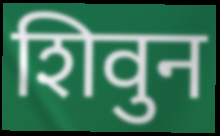
शिवुन